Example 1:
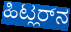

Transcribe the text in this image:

ಹಿಟ್ಲರ್‌ನ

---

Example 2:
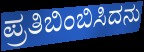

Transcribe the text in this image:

ಪ್ರತಿಬಿಂಬಿಸಿದನು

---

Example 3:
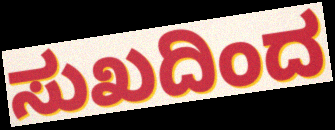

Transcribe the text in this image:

ಸುಖದಿಂದ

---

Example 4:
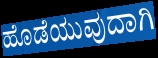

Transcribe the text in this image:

ಹೊಡೆಯುವುದಾಗಿ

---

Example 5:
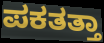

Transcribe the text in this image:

ಪಕತತ್ತಾ